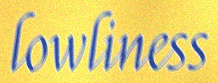
lowliness